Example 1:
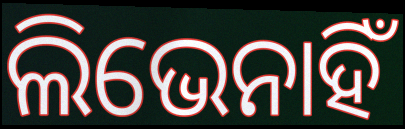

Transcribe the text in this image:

ଲିଭେନାହିଁ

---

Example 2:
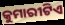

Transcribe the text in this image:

କୁମାରୀଟିଏ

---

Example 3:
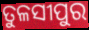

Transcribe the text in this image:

ତୁଳସୀପୁର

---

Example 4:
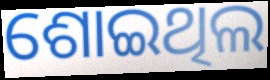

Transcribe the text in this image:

ଶୋଇଥିଲ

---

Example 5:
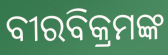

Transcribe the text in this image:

ବୀରବିକ୍ରମଙ୍କ